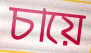
চায়ে